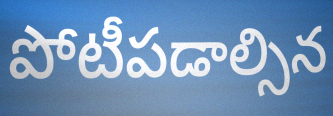
పోటీపడాల్సిన